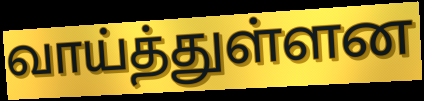
வாய்த்துள்ளன